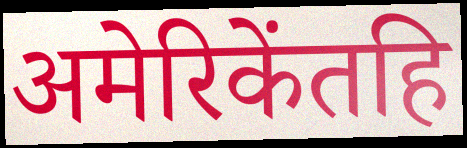
अमेरिकेंतहि